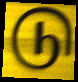
டு